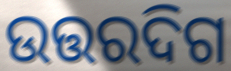
ଉତ୍ତରଦିଗ